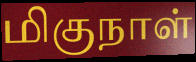
மிகுநாள்